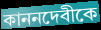
কাননদেবীকে